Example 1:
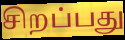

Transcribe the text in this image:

சிறப்பது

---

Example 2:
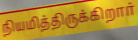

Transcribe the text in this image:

நியமித்திருக்கிறார்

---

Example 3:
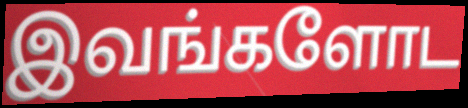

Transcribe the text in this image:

இவங்களோட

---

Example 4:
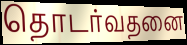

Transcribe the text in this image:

தொடர்வதனை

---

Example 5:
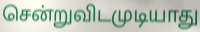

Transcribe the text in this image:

சென்றுவிடமுடியாது